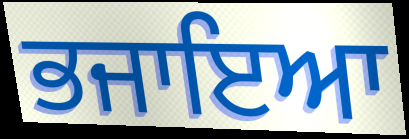
ਭਜਾਇਆ